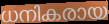
ധനികരായ